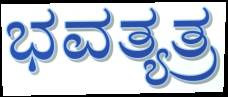
ಭವತ್ಯತ್ರ